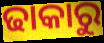
ଢାକାରୁ